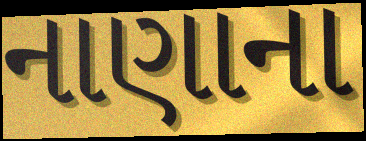
નાણાના